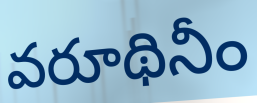
వరూథినీం